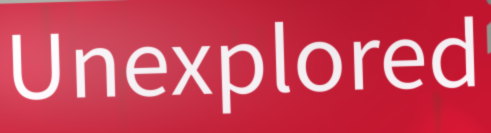
Unexplored